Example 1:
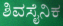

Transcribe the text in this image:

ಶಿವಸೈನಿಕ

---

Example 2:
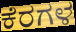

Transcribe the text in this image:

ಕೆರಗಳ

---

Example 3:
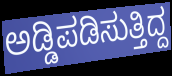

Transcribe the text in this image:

ಅಡ್ಡಿಪಡಿಸುತ್ತಿದ್ದ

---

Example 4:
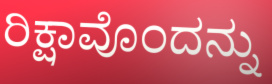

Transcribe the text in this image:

ರಿಕ್ಷಾವೊಂದನ್ನು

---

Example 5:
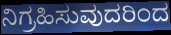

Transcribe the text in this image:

ನಿಗ್ರಹಿಸುವುದರಿಂದ